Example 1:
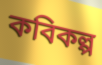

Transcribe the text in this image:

কবিকল্প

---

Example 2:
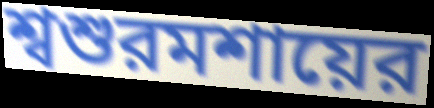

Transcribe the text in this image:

শ্বশুরমশায়ের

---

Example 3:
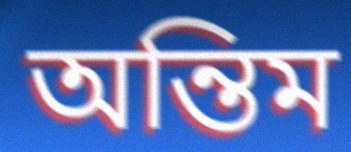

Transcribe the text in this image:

অন্তিম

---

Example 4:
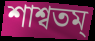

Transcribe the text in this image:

শাশ্বতম্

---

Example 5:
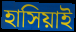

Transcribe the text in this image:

হাসিয়াই